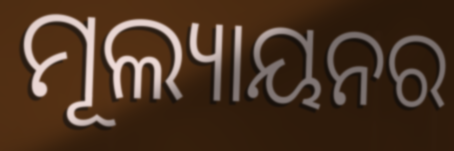
ମୂଲ୍ୟାୟନର